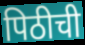
पिठीची